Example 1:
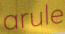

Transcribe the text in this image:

arule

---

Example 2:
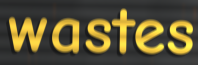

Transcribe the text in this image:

wastes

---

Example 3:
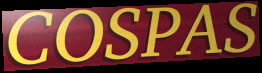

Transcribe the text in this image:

COSPAS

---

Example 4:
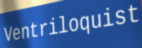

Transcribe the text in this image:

Ventriloquist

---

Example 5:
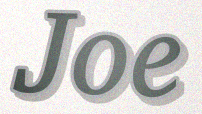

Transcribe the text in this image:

Joe